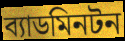
ব্যাডমিনটন